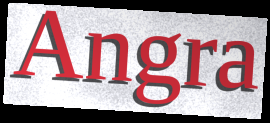
Angra